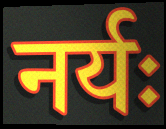
नर्यः